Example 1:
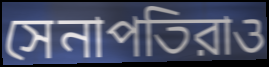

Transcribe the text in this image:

সেনাপতিরাও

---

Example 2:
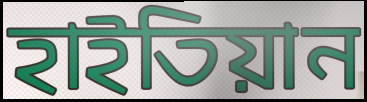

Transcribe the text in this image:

হাইতিয়ান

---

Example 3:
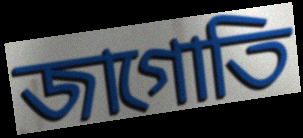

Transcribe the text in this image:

জাগোতি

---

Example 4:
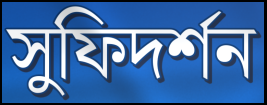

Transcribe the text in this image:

সুফিদর্শন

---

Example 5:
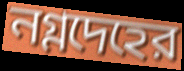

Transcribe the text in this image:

নগ্নদেহের